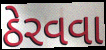
ઠેરવવા